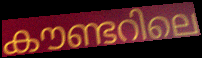
കൗണ്ടറിലെ